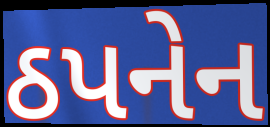
ઠપનેન